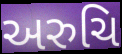
અરુચિ